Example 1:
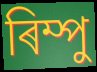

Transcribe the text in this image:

ৰিম্পু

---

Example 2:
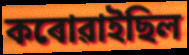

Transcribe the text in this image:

কৰোৱাইছিল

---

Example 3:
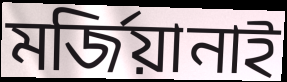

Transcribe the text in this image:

মৰ্জিয়ানাই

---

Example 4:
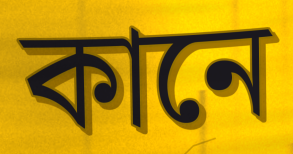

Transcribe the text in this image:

কানে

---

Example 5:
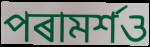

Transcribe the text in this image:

পৰামৰ্শও